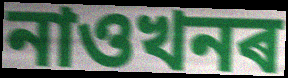
নাওখনৰ